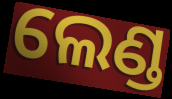
ଲେଣ୍ଡ